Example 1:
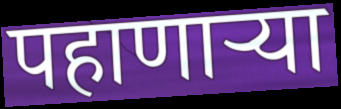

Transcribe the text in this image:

पहाणार्‍या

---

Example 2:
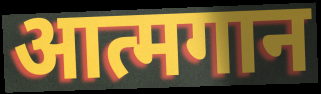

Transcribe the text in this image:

आत्मगान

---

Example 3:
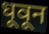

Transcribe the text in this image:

धूवून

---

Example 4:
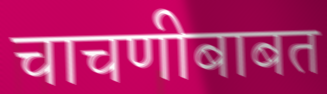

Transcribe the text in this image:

चाचणीबाबत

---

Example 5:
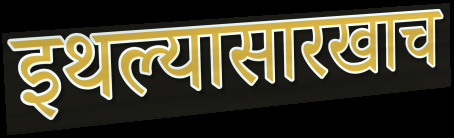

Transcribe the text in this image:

इथल्यासारखाच